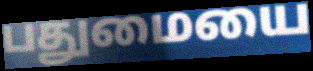
பதுமையை